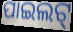
ପାଇଲଟ୍